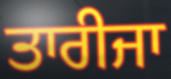
ਤਾਰੀਜਾ